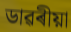
ডাৱৰীয়া